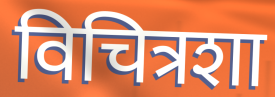
विचित्रशा